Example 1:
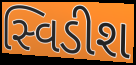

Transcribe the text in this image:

સ્વિડીશ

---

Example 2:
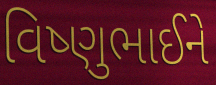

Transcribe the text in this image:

વિષ્ણુભાઈને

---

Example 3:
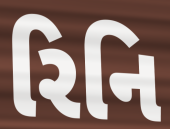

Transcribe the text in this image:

રિનિ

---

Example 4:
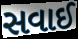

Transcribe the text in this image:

સવાઈ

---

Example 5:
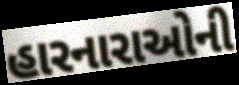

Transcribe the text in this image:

હારનારાઓની